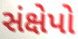
સંક્ષેપો